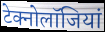
टेक्नोलॉजियां